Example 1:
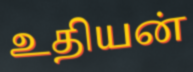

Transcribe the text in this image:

உதியன்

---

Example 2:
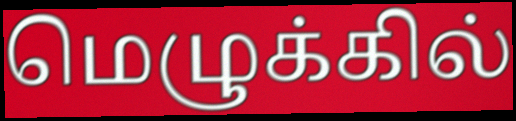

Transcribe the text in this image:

மெழுக்கில்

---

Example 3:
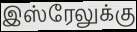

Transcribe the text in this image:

இஸ்ரேலுக்கு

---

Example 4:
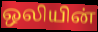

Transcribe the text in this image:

ஒலியின்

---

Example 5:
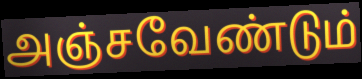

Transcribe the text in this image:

அஞ்சவேண்டும்